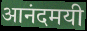
आनंदमयी